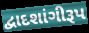
દ્વાદશાંગીરૂપ